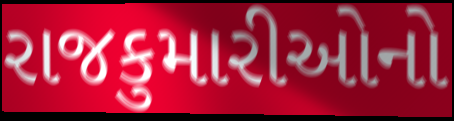
રાજકુમારીઓનો